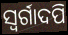
ସ୍ୱର୍ଗାଦପି